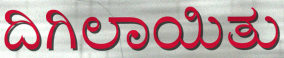
ದಿಗಿಲಾಯಿತು